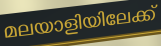
മലയാളിയിലേക്ക്